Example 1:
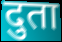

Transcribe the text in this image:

दुता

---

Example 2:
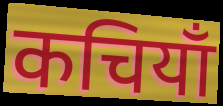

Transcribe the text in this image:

कचियाँ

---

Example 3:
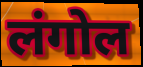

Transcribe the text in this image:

लंगोल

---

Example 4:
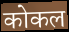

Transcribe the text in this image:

कोकल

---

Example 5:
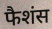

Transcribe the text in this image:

फैशंस